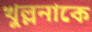
খুল্লনাকে